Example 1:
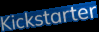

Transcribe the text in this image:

Kickstarter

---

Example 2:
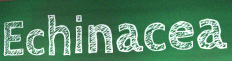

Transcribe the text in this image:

Echinacea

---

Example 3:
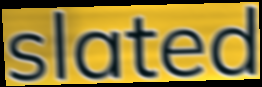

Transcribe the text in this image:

slated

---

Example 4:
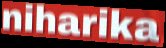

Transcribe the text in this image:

niharika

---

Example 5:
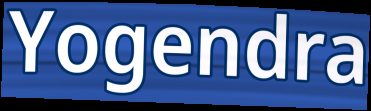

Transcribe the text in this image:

Yogendra